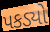
પકડ્યો